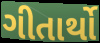
ગીતાર્થો